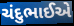
ચંદુભાઈએ